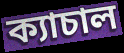
ক্যাচাল